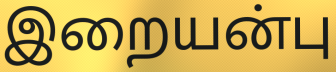
இறையன்பு